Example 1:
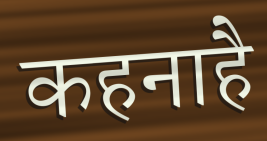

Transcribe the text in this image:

कहनाहै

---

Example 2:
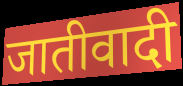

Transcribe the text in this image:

जातीवादी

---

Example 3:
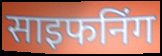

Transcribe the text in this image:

साइफनिंग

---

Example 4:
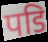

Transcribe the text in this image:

पडि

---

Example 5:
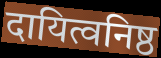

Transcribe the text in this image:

दायित्वनिष्ठ